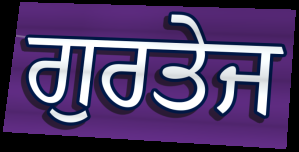
ਗੁਰਤੇਜ